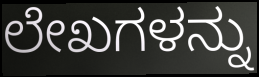
ಲೇಖಗಳನ್ನು